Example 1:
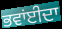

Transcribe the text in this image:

ਭਵਾਂਈਦਾ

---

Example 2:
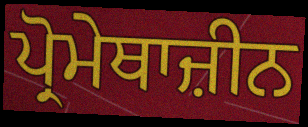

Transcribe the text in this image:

ਪ੍ਰੋਮੇਥਾਜ਼ੀਨ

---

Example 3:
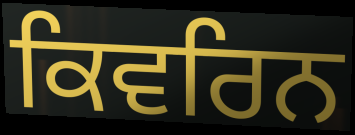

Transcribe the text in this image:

ਕਿਵਰਿਨ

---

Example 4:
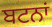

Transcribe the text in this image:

ਬਟਨਾਂ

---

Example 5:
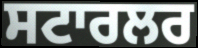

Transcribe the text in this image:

ਸਟਾਰਲਰ